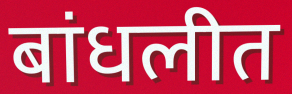
बांधलीत